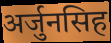
अर्जुनसिह